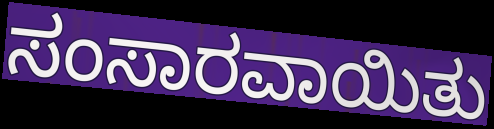
ಸಂಸಾರವಾಯಿತು